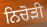
ਨਿਚੋੜੀ